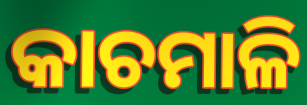
କାଚମାଳି